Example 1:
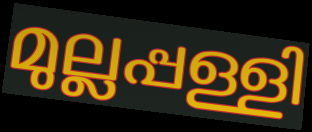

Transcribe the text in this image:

മുല്ലപ്പള്ളി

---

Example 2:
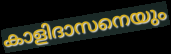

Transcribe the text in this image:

കാളിദാസനെയും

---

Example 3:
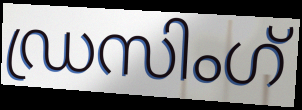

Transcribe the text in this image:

ഡ്രസിംഗ്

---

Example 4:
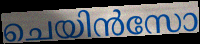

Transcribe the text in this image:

ചെയിൻസോ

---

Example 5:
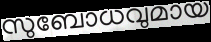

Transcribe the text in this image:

സുബോധവുമായ